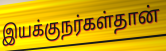
இயக்குநர்கள்தான்